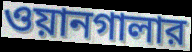
ওয়ানগালার